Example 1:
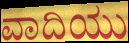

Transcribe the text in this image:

ವಾದಿಯು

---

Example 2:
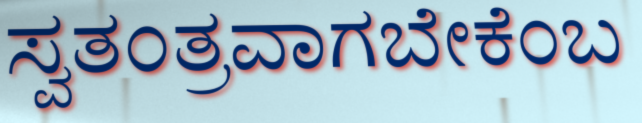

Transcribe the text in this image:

ಸ್ವತಂತ್ರವಾಗಬೇಕೆಂಬ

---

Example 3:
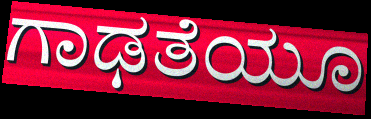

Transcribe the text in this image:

ಗಾಢತೆಯೂ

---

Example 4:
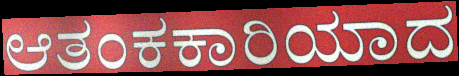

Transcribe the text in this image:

ಆತಂಕಕಾರಿಯಾದ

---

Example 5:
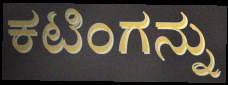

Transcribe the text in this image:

ಕಟಿಂಗನ್ನು